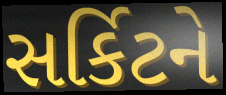
સર્કિટને